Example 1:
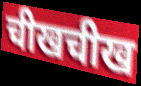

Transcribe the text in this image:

चीखचीख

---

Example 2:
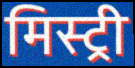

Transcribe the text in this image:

मिस्ट्री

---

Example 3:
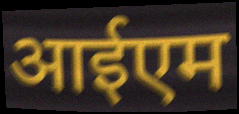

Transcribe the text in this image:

आईएम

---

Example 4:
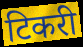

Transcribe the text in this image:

टिकरी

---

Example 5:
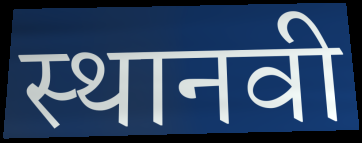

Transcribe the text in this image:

स्थानवी